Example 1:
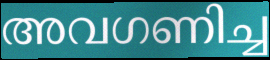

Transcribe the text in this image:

അവഗണിച്ച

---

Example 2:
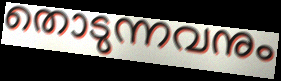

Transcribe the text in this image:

തൊടുന്നവനും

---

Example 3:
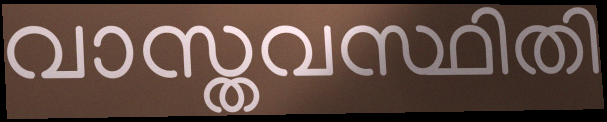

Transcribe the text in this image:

വാസ്തവസ്ഥിതി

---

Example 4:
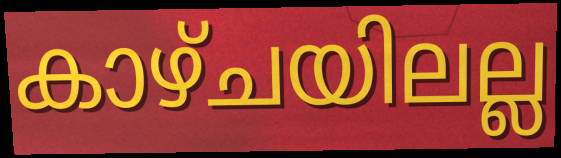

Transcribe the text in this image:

കാഴ്ചയിലല്ല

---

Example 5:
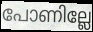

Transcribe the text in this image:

പോണില്ലേ